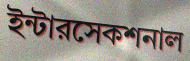
ইন্টারসেকশনাল